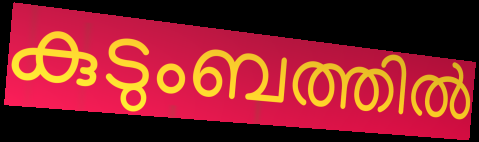
കുടുംബത്തിൽ